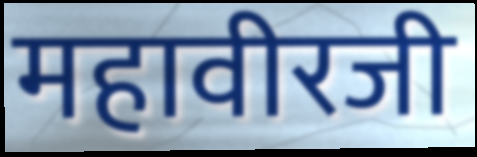
महावीरजी